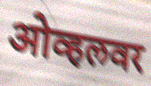
ओव्हलवर